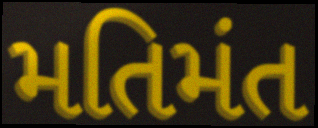
મતિમંત